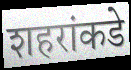
शहरांकडे